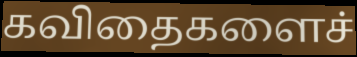
கவிதைகளைச்